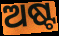
ଅଷ୍ଟ